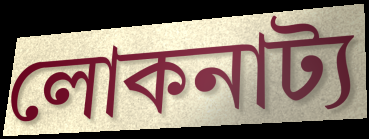
লোকনাট্য